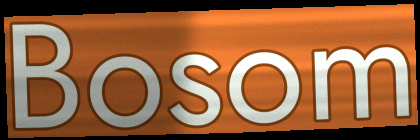
Bosom